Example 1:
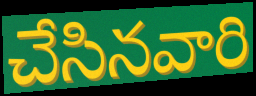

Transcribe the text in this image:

చేసినవారి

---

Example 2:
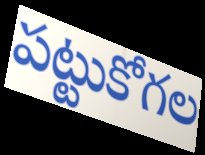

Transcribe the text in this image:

పట్టుకోగల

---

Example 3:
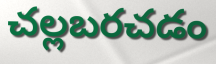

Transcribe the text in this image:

చల్లబరచడం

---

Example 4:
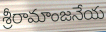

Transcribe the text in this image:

శ్రీరామాంజనేయ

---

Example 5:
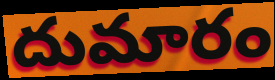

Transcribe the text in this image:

దుమారం